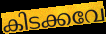
കിടക്കവേ